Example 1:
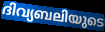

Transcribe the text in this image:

ദിവ്യബലിയുടെ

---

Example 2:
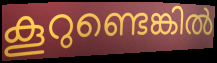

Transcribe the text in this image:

കൂറുണ്ടെങ്കിൽ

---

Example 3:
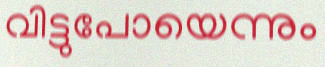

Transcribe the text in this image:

വിട്ടുപോയെന്നും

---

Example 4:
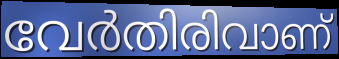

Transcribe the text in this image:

വേർതിരിവാണ്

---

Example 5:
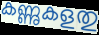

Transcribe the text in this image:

കണ്ണുകളതു